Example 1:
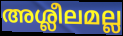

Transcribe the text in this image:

അശ്ലീലമല്ല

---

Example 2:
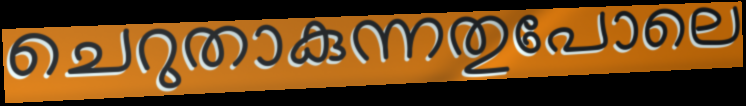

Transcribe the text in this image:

ചെറുതാകുന്നതുപോലെ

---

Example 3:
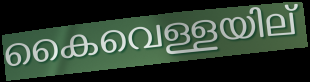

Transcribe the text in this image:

കൈവെള്ളയില്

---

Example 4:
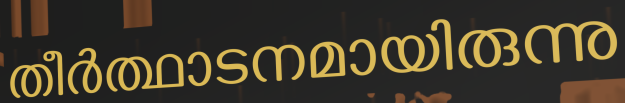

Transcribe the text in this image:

തീർത്ഥാടനമായിരുന്നു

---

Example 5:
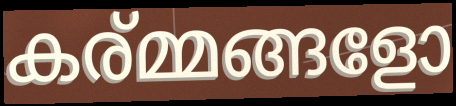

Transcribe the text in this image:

കര്മ്മങ്ങളോ